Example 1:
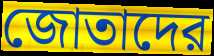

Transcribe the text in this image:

জোতাদের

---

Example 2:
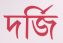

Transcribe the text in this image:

দর্জি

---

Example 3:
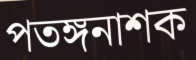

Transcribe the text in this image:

পতঙ্গনাশক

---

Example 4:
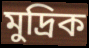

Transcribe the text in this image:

মুদ্রিক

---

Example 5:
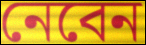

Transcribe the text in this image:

নেবেন